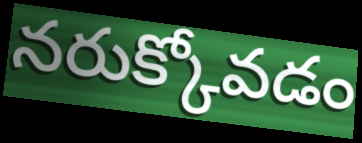
నరుక్కోవడం